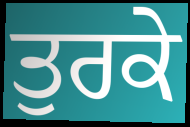
ਤੁਰਕੇ